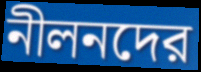
নীলনদের